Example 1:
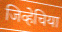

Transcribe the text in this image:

जिव्हेचिया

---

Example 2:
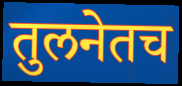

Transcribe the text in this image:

तुलनेतच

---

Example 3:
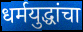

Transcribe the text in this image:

धर्मयुद्धांचा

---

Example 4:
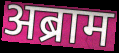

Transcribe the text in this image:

अब्राम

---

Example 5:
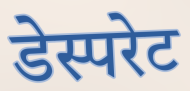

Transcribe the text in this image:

डेस्परेट